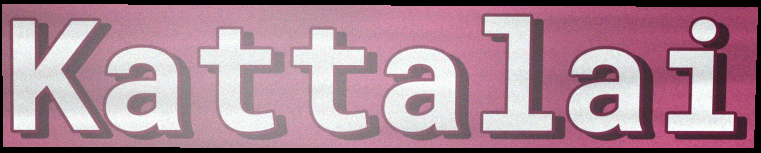
Kattalai